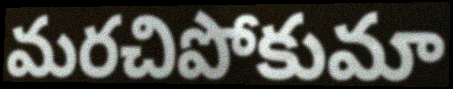
మరచిపోకుమా